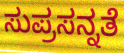
ಸುಪ್ರಸನ್ನತೆ